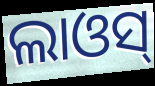
ଲାଓସ୍